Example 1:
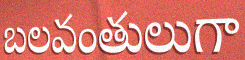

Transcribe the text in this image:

బలవంతులుగా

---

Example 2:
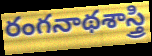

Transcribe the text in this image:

రంగనాథశాస్త్రి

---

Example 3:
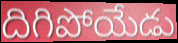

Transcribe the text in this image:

దిగిపోయేడు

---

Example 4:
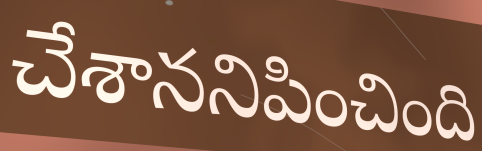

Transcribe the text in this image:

చేశాననిపించింది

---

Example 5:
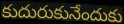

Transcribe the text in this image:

కుదురుకునేందుకు